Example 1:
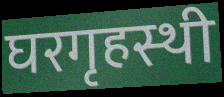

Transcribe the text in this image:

घरगृहस्थी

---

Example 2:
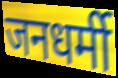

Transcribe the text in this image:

जनधर्मी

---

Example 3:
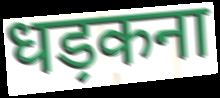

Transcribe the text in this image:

धड़कना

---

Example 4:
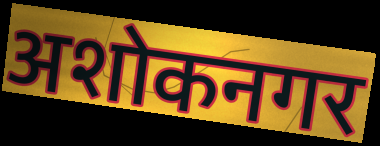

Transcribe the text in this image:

अशोकनगर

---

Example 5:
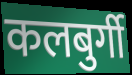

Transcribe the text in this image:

कलबुर्गी